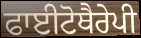
ਫਾਈਟੋਥੈਰੇਪੀ